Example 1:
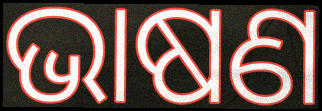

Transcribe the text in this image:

ଭାଷଣ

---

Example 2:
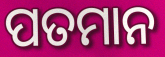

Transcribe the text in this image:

ପତମାନ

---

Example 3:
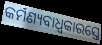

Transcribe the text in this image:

କର୍ମଣ୍ୟବାଧ୍ୱକାରସ୍ତେ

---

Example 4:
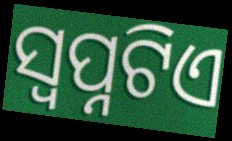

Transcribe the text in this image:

ସ୍ବପ୍ନଟିଏ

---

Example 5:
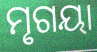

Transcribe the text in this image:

ମୃଗୟା